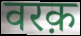
वरक़